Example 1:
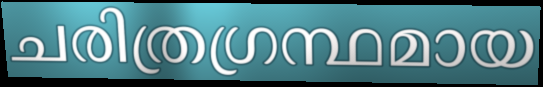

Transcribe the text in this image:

ചരിത്രഗ്രന്ഥമായ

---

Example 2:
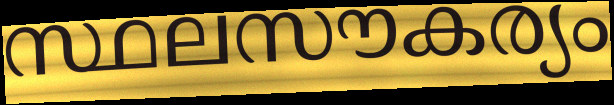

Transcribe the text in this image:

സ്ഥലസൗകര്യം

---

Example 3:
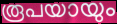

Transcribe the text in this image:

രൂപയായും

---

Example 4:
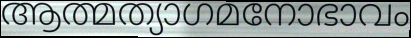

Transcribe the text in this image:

ആത്മത്യാഗമനോഭാവം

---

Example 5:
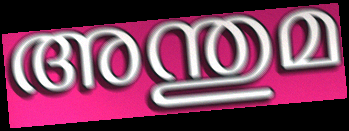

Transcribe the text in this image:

അന്തുമ